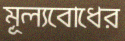
মূল্যবোধের